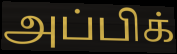
அப்பிக்